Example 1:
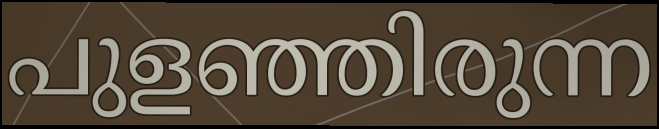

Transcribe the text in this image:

പുളഞ്ഞിരുന്ന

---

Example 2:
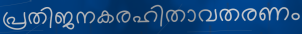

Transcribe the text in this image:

പ്രതിജനകരഹിതാവതരണം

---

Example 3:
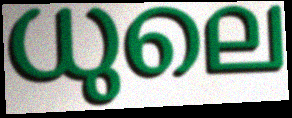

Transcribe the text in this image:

ധുലെ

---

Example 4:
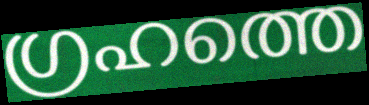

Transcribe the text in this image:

ഗ്രഹത്തെ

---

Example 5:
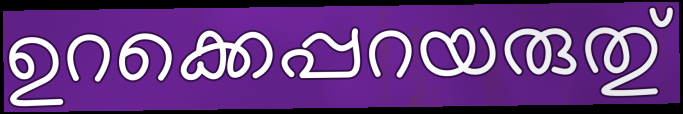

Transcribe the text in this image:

ഉറക്കെപ്പറയരുതു്